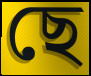
ছে